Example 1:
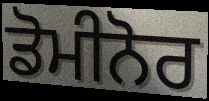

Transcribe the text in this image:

ਡੋਮੀਨੋਰ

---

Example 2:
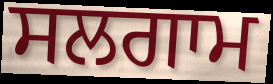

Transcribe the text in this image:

ਸਲਗਾਮ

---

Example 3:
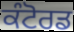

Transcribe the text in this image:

ਕੰਟੋਰਡ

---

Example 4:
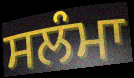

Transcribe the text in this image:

ਸਲੰਮਾ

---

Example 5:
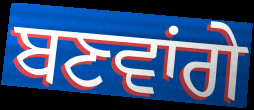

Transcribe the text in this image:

ਬਣਵਾਂਗੇ